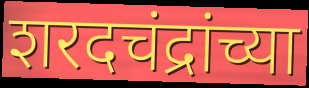
शरदचंद्रांच्या